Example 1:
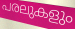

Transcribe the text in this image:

പരലുകളും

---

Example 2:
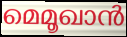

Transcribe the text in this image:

മെമൂഖാൻ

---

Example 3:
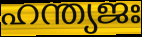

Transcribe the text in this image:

ഹന്ത്യജഃ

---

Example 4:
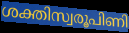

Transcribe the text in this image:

ശക്തിസ്വരൂപിണി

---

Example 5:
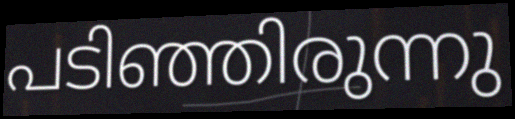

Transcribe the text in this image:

പടിഞ്ഞിരുന്നു